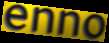
enno